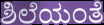
ಶಿಲೆಯಂತೆ